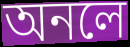
অনলে